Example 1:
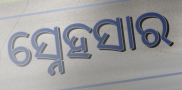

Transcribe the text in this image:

ସ୍ନେହସାର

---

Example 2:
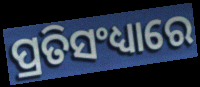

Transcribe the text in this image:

ପ୍ରତିସଂଧ୍ୟାରେ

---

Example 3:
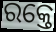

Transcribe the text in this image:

ରକ୍ତେ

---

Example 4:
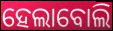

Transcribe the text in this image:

ହେଲାବୋଲି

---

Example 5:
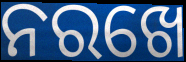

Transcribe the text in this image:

ନରଖେ